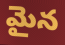
మైన